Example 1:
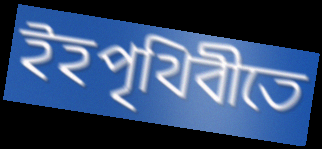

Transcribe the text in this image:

ইহপৃথিবীতে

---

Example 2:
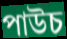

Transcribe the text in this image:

পাউচ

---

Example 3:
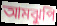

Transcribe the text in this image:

আমঝুপি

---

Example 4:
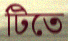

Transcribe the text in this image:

টিতে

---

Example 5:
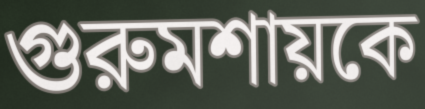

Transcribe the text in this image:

গুরুমশায়কে